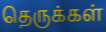
தெருக்கள்